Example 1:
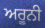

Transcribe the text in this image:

ਅਰੂਨੀ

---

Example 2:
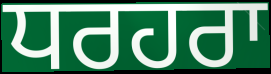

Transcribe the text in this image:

ਧਰਹਰਾ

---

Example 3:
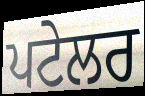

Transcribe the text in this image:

ਪਟੇਲਰ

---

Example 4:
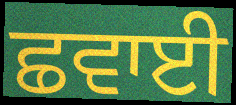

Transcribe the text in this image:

ਛਵਾਈ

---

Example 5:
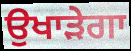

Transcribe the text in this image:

ਉਖਾੜੇਗਾ